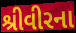
શ્રીવીરના